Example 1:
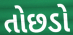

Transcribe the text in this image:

તોછડો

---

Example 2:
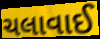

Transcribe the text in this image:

ચલાવાઈ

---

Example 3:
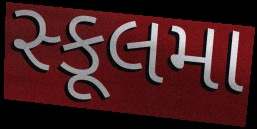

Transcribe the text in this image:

સ્કૂલમા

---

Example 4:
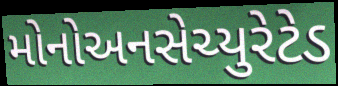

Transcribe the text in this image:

મોનોઅનસેચ્યુરેટેડ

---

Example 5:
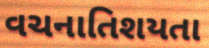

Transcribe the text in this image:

વચનાતિશયતા